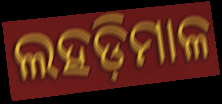
ଲହଡ଼ିମାଳ